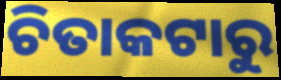
ଚିତାକଟାରୁ